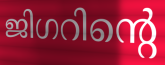
ജിഗറിന്റെ